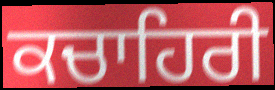
ਕਚਾਹਿਰੀ